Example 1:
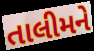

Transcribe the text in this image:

તાલીમને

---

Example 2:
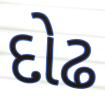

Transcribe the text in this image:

દોઢ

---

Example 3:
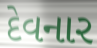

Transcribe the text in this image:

દેવનાર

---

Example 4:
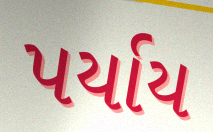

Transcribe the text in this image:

પર્યાય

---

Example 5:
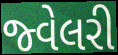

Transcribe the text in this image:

જ્વેલરી